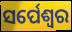
ସର୍ପେଶ୍ଵର